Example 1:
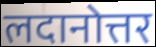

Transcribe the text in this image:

लदानोत्तर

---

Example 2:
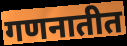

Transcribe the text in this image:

गणनातीत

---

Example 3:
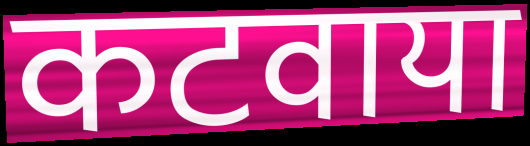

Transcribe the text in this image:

कटवाया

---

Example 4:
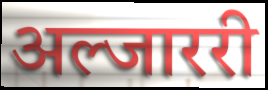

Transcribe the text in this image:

अल्जाररी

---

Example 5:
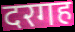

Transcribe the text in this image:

दरगह